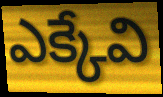
ఎక్కేవి